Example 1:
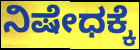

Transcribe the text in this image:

ನಿಷೇಧಕ್ಕೆ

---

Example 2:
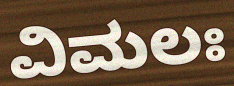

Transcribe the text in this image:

ವಿಮಲಃ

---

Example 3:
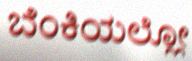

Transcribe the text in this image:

ಬೆಂಕಿಯಲ್ಲೋ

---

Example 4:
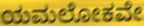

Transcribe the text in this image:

ಯಮಲೋಕವೇ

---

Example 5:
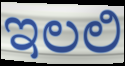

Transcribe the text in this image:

ಇಲಲಿ